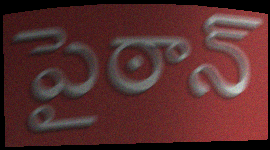
పైఠాన్